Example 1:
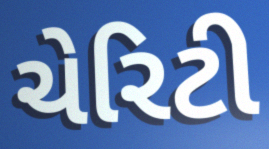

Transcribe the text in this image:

ચેરિટી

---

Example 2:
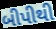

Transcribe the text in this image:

બીપીથી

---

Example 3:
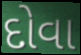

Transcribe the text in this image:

દોવા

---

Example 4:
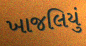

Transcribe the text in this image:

ખાજલિયું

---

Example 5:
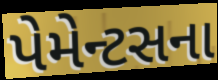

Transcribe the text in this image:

પેમેન્ટસના